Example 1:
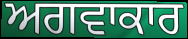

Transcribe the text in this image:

ਅਗਵਾਕਾਰ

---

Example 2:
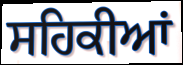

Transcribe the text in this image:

ਸਹਿਕੀਆਂ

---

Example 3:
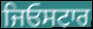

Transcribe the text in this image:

ਜਿਓਸਟਾਰ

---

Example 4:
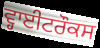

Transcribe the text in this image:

ਵ੍ਹਾਈਟਰੌਕਸ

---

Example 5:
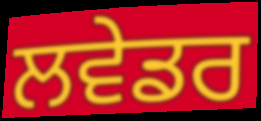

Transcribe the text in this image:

ਲਵੇਡਰ